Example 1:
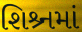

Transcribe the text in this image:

શિશ્ર્નમાં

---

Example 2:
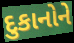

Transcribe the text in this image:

દુકાનોને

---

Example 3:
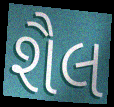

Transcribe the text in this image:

શૈલ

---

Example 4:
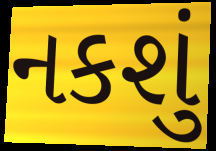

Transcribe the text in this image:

નકશું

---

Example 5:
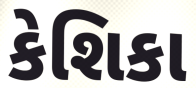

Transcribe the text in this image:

કેશિકા